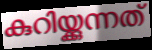
കുറിയ്ക്കുന്നത്